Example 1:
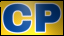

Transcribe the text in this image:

CP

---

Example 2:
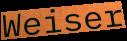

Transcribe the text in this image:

Weiser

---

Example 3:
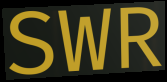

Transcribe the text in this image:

SWR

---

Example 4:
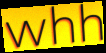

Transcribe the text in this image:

whh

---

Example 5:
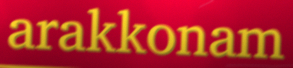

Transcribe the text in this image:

arakkonam